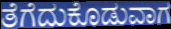
ತೆಗೆದುಕೊಡುವಾಗ